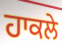
ਹਾਕਲੇ